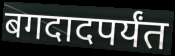
बगदादपर्यंत